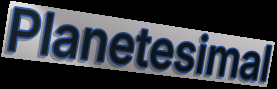
Planetesimal